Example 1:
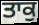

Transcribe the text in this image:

ਤਾਕੁ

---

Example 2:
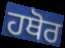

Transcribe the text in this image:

ਹਥੋਰ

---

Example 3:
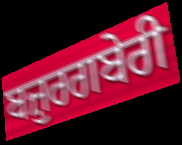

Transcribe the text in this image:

ਬਜ਼ੁਰਗਬੇਰੀ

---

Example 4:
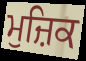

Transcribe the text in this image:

ਮੁਜ਼ਿਕ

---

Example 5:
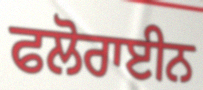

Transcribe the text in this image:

ਫਲੋਰਾਈਨ